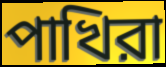
পাখিরা